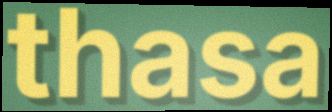
thasa